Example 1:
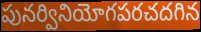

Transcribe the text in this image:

పునర్వినియోగపరచదగిన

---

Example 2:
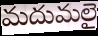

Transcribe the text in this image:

మదుమలై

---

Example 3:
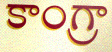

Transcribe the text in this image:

కాంగ్రా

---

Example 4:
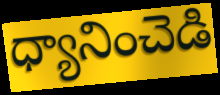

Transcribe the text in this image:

ధ్యానించెడి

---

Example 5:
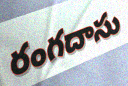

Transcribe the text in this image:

రంగదాసు